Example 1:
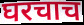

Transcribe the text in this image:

घरचाच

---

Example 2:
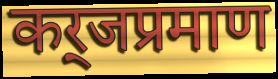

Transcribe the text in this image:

कर्जप्रमाण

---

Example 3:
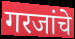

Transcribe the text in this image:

गरजांचे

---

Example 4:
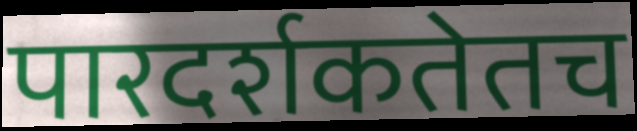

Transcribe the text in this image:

पारदर्शकतेतच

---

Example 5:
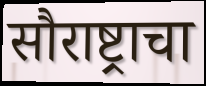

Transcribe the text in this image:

सौराष्ट्राचा